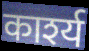
कार्श्य